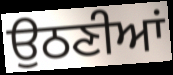
ਉਠਣੀਆਂ